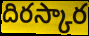
దిరస్కార